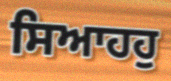
ਸਿਆਹਹੁ